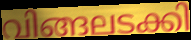
വിങ്ങലടക്കി